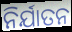
ନିର୍ଯାତନ